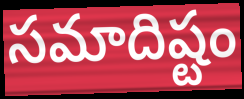
సమాదిష్టం